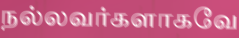
நல்லவர்களாகவே